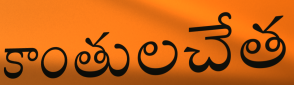
కాంతులచేత